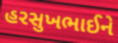
હરસુખભાઈને